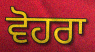
ਵੋਹਰਾ